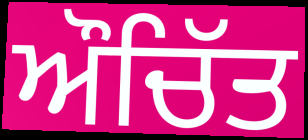
ਔਚਿੱਤ